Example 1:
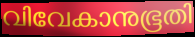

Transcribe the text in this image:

വിവേകാനുഭൂതി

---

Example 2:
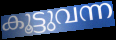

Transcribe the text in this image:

കൂട്ടുവന്ന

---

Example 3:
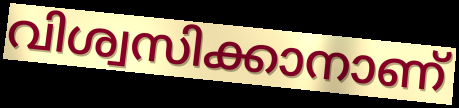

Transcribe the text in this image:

വിശ്വസിക്കാനാണ്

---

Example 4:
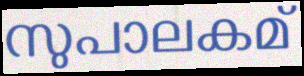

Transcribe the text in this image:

സുപാലകമ്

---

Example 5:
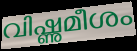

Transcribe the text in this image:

വിഷ്ണുമീശം